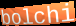
bolchi